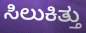
ಸಿಲುಕಿತ್ತು